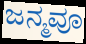
ಜನ್ಮವೂ